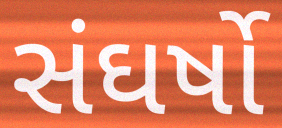
સંઘર્ષો